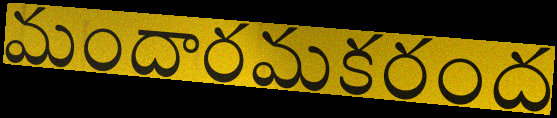
మందారమకరంద